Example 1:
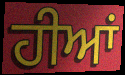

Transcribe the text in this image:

ਹੀਆਂ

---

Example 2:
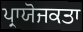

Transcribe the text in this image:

ਪ੍ਰਾਯੋਜਕਤਾ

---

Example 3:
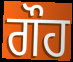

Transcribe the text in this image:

ਗੌਹ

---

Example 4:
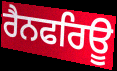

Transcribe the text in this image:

ਰੈਨਫਰਿਊ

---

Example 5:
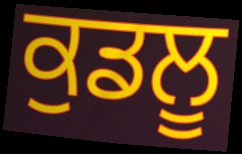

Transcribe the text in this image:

ਕੁਡਲੂ